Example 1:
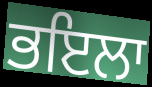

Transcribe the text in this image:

ਭਇਲਾ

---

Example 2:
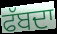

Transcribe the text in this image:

ਫੱਬਦਾ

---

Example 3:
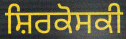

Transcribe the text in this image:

ਸ਼ਿਰਕੋਸਕੀ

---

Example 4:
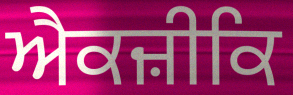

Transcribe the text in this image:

ਐਕਜ਼ੀਕਿ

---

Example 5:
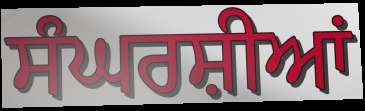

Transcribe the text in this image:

ਸੰਘਰਸ਼ੀਆਂ